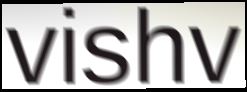
vishv